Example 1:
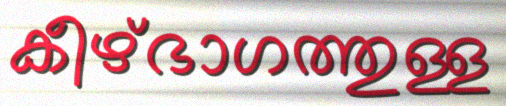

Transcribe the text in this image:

കീഴ്ഭാഗത്തുള്ള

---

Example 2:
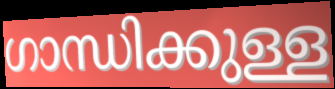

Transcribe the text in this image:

ഗാന്ധിക്കുള്ള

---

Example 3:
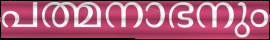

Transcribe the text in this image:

പത്മനാഭനും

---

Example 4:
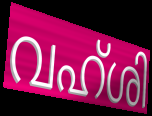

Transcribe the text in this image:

വഹ്ശി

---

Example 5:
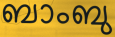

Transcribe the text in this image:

ബാംബു